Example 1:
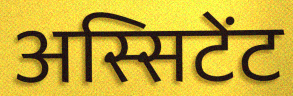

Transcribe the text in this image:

अस्सिटेंट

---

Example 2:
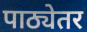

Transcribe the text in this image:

पाठ्येतर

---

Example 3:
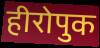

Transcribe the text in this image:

हीरोपुक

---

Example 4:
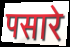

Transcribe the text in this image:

पसारे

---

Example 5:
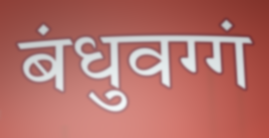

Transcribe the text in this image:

बंधुवग्गं